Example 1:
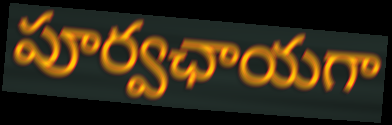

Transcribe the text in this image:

పూర్వఛాయగా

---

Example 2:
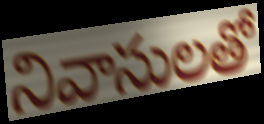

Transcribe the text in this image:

నివాసులతో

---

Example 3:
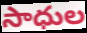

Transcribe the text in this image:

సాధుల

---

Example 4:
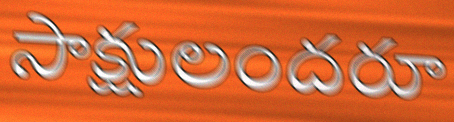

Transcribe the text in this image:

సాక్షులందరూ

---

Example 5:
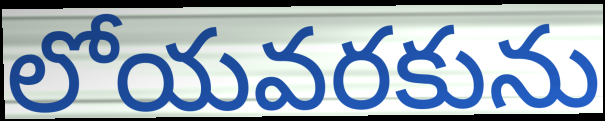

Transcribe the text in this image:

లోయవరకును